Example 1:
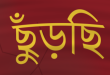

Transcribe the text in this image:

ছুঁড়ছি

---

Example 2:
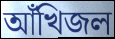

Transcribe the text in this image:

আঁখিজল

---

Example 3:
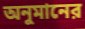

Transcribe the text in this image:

অনুমানের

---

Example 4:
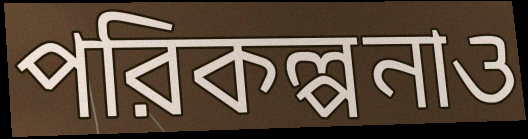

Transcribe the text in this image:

পরিকল্পনাও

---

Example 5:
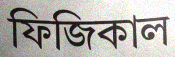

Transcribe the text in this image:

ফিজিকাল